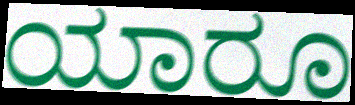
ಯಾರೂ